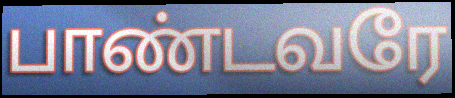
பாண்டவரே